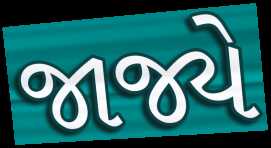
જાજ્યે